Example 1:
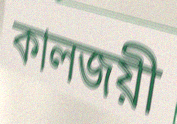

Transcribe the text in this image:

কালজয়ী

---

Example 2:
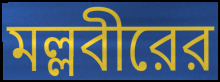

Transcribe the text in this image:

মল্লবীরের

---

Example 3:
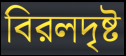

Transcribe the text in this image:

বিরলদৃষ্ট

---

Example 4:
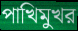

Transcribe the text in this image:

পাখিমুখর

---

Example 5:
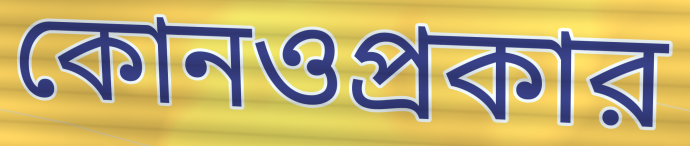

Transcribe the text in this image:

কোনওপ্রকার